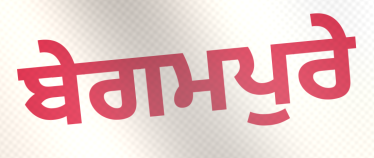
ਬੇਗਮਪੁਰੇ